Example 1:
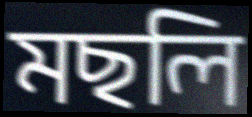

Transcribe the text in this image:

মছলি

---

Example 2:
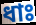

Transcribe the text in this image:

ধাঃ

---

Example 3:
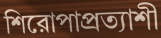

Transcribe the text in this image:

শিরোপাপ্রত্যাশী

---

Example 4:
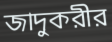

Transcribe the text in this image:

জাদুকরীর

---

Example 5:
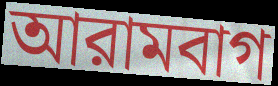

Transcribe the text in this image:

আরামবাগ